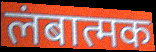
लंबात्मक